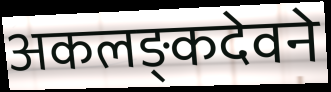
अकलङ्कदेवने